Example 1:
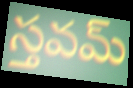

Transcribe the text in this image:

స్తవమ్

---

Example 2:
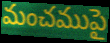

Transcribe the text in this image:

మంచముపై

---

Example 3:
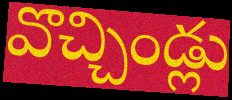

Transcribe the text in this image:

వొచ్చిండ్లు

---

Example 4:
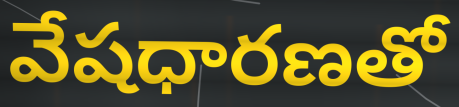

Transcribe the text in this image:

వేషధారణతో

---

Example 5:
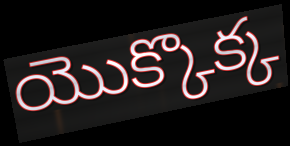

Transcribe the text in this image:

యొక్కొక్క